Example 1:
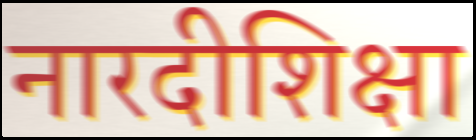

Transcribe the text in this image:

नारदीशिक्षा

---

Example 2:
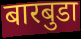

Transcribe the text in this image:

बारबुडा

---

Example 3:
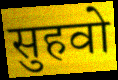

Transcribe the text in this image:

सुहवो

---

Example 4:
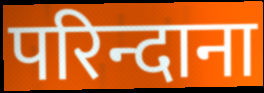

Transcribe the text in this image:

परिन्दाना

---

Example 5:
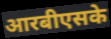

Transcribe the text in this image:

आरबीएसके